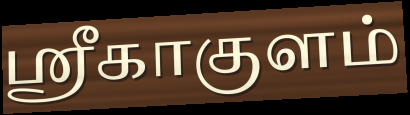
ஸ்ரீகாகுளம்